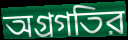
অগ্রগতির